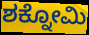
ಶಕ್ನೋಮಿ